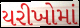
યરીખોમાં